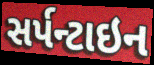
સર્પન્ટાઇન